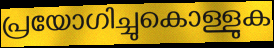
പ്രയോഗിച്ചുകൊള്ളുക